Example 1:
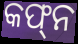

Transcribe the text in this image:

କଫ୍‌ନ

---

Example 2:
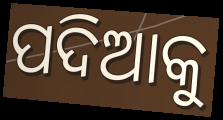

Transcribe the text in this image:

ପଦିଆକୁ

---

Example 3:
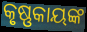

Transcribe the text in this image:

କୃଷ୍ଣକାୟଙ୍କ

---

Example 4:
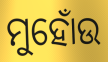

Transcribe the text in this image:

ମୁହୋଁଉ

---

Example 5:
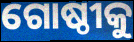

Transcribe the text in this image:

ଗୋଷ୍ଠୀକୁ